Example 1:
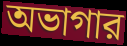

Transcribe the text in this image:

অভাগার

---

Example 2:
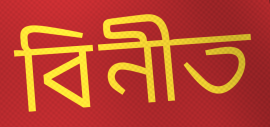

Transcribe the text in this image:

বিনীত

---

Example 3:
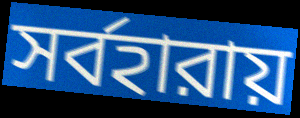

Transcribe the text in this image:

সর্বহারায়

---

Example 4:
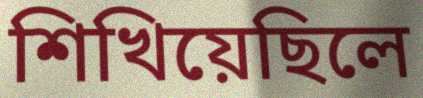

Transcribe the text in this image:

শিখিয়েছিলে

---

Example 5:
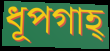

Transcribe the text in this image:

ধূপগাহ্